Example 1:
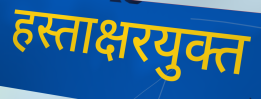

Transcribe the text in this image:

हस्ताक्षरयुक्त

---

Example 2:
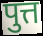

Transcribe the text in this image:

पुत्त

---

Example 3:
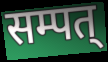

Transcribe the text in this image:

सम्पत्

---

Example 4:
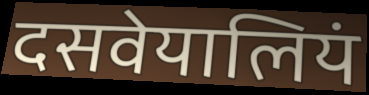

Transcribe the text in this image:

दसवेयालियं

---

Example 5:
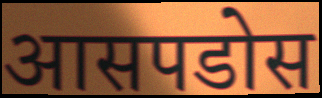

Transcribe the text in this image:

आसपडोस